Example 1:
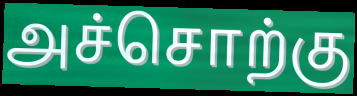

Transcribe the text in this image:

அச்சொற்கு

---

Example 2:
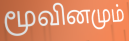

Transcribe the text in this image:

மூவினமும்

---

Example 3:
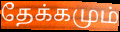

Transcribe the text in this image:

தேக்கமும்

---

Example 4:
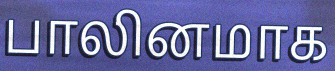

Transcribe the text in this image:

பாலினமாக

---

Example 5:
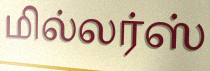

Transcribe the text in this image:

மில்லர்ஸ்